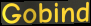
Gobind